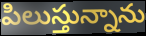
పిలుస్తున్నాను